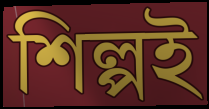
শিল্পই